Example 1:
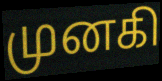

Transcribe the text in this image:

முனகி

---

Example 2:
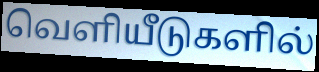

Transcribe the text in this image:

வெளியீடுகளில்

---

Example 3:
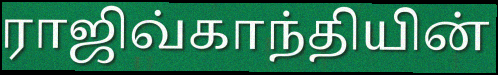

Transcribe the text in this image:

ராஜிவ்காந்தியின்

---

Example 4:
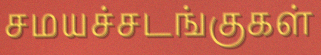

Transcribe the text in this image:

சமயச்சடங்குகள்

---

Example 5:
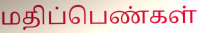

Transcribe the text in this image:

மதிப்பெண்கள்